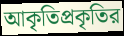
আকৃতিপ্রকৃতির